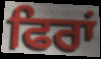
ਫਿਰਾਂ